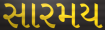
સારમય